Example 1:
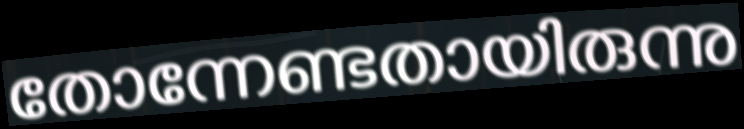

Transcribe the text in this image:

തോന്നേണ്ടതായിരുന്നു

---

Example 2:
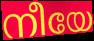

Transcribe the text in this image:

നീയേ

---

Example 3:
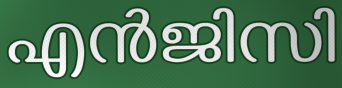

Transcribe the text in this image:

എൻജിസി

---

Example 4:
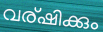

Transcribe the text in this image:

വര്ഷിക്കും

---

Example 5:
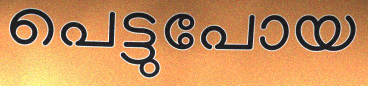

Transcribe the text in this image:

പെട്ടുപോയ